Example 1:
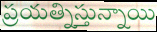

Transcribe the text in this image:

ప్రయత్నిస్తున్నాయి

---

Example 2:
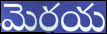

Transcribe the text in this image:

మెరయ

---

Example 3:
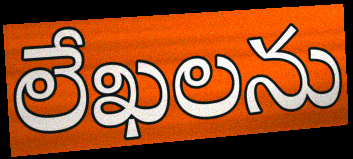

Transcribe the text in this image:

లేఖలను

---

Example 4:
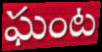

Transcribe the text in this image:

ఘంట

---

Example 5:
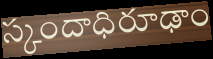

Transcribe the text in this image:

స్కందాధిరూఢాం